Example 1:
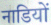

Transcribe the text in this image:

नाडियों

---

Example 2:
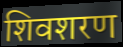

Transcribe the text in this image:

शिवशरण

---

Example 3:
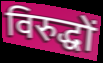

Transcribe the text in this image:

विरुद्धों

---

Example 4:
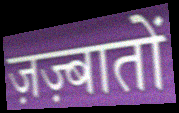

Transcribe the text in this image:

ज़ज़्बातों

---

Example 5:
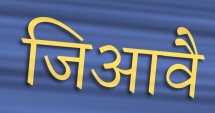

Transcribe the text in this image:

जिआवै